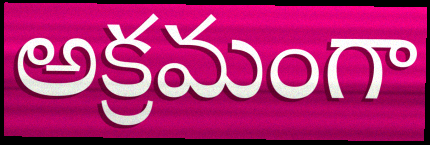
అక్రమంగా